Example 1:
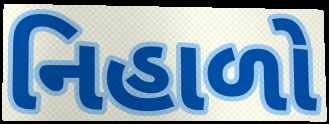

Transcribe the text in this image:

નિહાળો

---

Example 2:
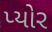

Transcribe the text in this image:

પ્યોર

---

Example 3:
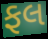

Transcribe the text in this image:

ફલ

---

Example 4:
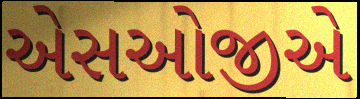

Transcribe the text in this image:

એસઓજીએ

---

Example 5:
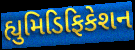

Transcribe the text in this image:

હ્યુમિડિફિકેશન